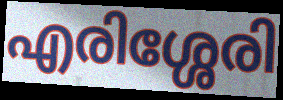
എരിശ്ശേരി